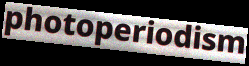
photoperiodism